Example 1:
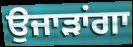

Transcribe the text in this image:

ਉਜਾੜਾਂਗਾ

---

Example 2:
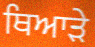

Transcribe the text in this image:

ਥਿਆੜੇ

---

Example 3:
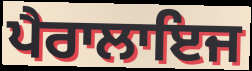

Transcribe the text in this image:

ਪੈਰਾਲਾਇਜ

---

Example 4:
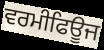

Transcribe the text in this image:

ਵਰਮੀਫਿਊਜ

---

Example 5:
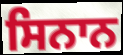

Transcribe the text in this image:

ਸਿਨਾਨ